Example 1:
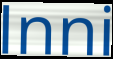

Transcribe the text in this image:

Inni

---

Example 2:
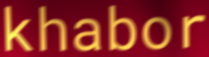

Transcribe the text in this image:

khabor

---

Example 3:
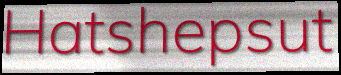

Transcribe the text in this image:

Hatshepsut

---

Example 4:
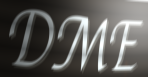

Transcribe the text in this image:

DME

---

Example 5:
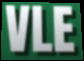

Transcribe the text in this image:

VLE